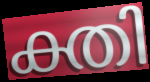
ക്തി